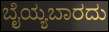
ಬೈಯ್ಯಬಾರದು